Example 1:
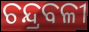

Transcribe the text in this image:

ଚନ୍ଦ୍ରବଳୀ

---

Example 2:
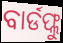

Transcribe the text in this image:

ବାର୍ଡଫ୍ଲୁ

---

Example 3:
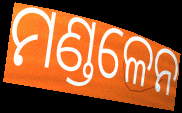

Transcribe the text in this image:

ମଣ୍ଡଳେନ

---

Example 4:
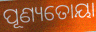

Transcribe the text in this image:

ପୂଣ୍ୟତୋୟା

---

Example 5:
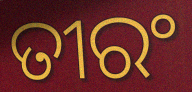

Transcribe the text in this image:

ତୀରଂ